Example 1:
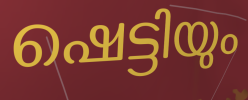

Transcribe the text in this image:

ഷെട്ടിയും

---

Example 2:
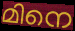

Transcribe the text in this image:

മിനെ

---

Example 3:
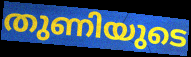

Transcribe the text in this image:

തുണിയുടെ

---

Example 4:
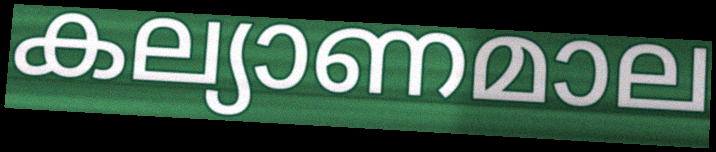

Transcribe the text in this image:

കല്യാണമാല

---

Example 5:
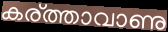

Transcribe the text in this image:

കര്ത്താവാണു